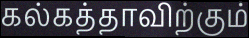
கல்கத்தாவிற்கும்